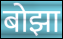
बोझा